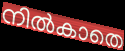
നിൽകാതെ